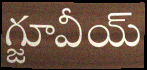
గ్జూవీయ్